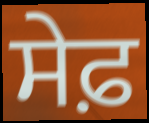
ਸੇਫ਼